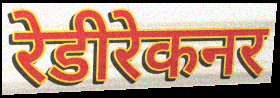
रेडीरेकनर